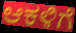
ಆಕಳಿಗೆ